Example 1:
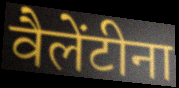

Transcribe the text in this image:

वैलेंटीना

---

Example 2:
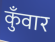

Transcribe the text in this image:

कुँवार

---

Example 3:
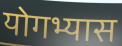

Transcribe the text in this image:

योगभ्यास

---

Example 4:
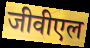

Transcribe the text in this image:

जीवीएल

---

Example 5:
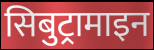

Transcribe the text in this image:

सिबुट्रामाइन